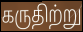
கருதிற்று